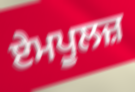
ਏਮਪੂਲਜ਼